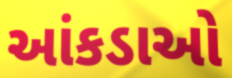
આંકડાઓ